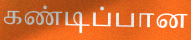
கண்டிப்பான